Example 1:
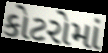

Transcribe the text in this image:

કોટરોમાં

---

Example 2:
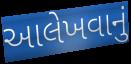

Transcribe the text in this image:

આલેખવાનું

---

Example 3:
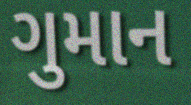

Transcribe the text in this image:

ગુમાન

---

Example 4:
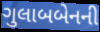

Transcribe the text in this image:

ગુલાબબેનની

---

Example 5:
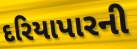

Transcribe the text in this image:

દરિયાપારની